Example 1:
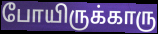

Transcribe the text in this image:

போயிருக்காரு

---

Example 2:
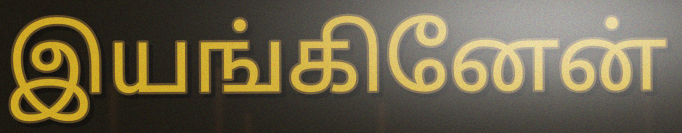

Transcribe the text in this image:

இயங்கினேன்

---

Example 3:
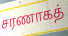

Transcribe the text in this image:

சரணாகத்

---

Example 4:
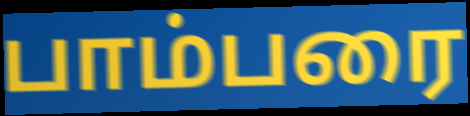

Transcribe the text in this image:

பாம்பரை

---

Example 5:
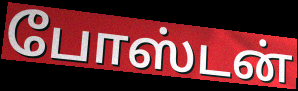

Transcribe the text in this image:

போஸ்டன்